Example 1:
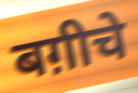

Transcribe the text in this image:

बग़ीचे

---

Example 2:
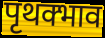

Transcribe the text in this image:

पृथक्भाव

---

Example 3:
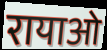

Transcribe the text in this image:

रायाओ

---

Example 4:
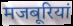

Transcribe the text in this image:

मजबूरियां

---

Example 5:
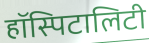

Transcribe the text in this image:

हॉस्पिटालिटी